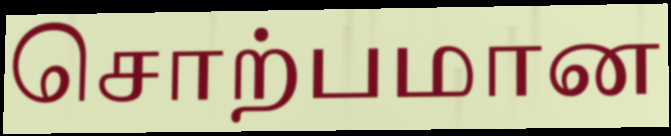
சொற்பமான